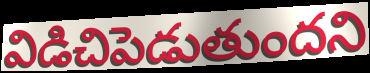
విడిచిపెడుతుందని